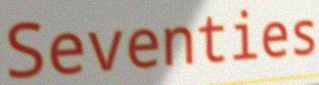
Seventies